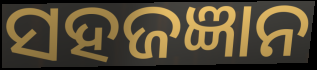
ସହଜଜ୍ଞାନ